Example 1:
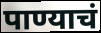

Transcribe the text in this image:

पाण्याचं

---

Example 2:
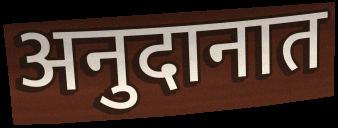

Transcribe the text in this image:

अनुदानात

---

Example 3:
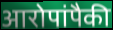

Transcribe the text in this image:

आरोपांपैकी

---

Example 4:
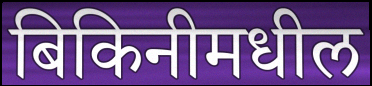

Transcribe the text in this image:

बिकिनीमधील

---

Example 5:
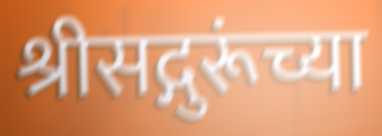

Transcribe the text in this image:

श्रीसद्गुरूंच्या